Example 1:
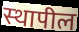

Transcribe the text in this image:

स्थापील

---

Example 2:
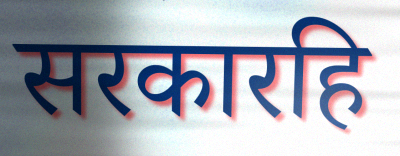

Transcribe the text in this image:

सरकारहि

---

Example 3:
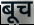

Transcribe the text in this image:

बूच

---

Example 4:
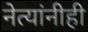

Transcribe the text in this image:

नेत्यांनीही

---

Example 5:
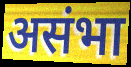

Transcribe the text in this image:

असंभा